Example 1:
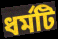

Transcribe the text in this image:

ধর্মটি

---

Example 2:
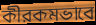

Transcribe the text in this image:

কীরকমভাবে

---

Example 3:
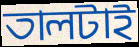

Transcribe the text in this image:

তালটাই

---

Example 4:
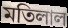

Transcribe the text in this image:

মতিলাল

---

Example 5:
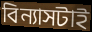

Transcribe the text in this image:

বিন্যাসটাই